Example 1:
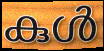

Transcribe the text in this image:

കുൾ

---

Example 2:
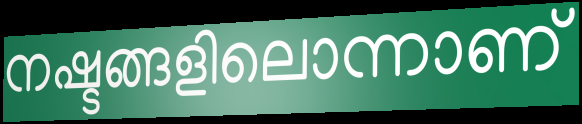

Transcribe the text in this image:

നഷ്ടങ്ങളിലൊന്നാണ്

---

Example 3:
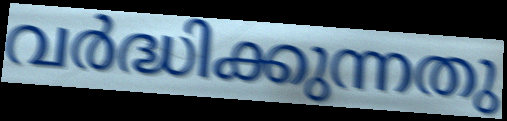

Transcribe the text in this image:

വർദ്ധിക്കുന്നതു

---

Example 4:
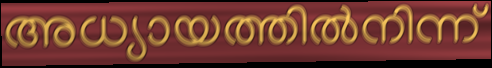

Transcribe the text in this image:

അധ്യായത്തിൽനിന്ന്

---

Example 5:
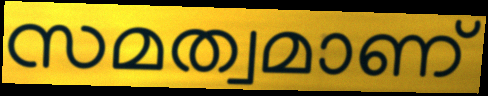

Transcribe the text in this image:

സമത്വമാണ്